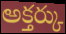
అక్తర్కు